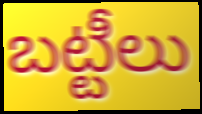
బట్టీలు